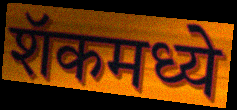
शॅकमध्ये